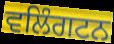
ਵਲਿੰਗਟਨ